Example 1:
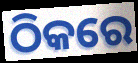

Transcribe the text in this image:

ଠିକରେ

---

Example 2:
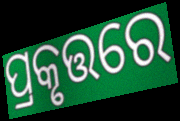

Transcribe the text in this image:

ପ୍ରକୃତ୍ତରେ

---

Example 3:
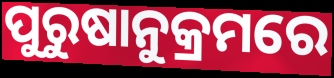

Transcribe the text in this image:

ପୁରୁଷାନୁକ୍ରମରେ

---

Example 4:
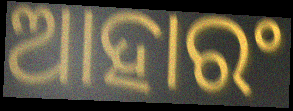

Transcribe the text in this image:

ଆହାରଂ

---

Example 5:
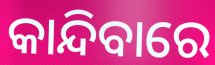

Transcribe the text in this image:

କାନ୍ଦିବାରେ